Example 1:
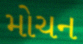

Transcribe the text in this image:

મોચન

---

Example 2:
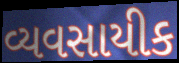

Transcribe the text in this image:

વ્યવસાયીક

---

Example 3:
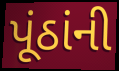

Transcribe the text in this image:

પૂંઠાંની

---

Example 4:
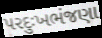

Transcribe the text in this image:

પરદુઃખભંજણા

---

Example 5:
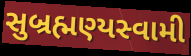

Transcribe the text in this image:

સુબ્રહ્મણ્યસ્વામી